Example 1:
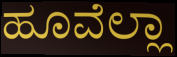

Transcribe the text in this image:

ಹೂವೆಲ್ಲಾ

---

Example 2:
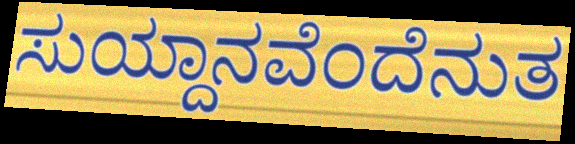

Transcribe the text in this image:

ಸುಯ್ದಾನವೆಂದೆನುತ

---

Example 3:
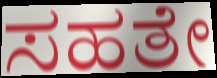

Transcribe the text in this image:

ಸಹತೇ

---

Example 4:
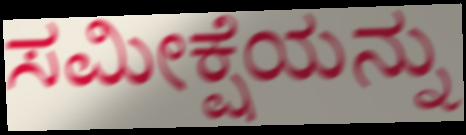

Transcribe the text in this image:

ಸಮೀಕ್ಷೆಯನ್ನು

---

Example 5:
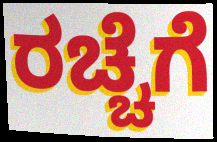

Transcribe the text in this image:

ರಚ್ಚೆಗೆ